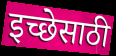
इच्छेसाठी